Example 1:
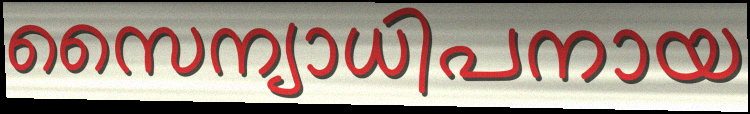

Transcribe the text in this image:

സൈന്യാധിപനായ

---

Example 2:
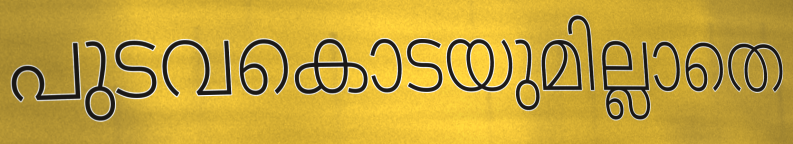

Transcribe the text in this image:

പുടവകൊടയുമില്ലാതെ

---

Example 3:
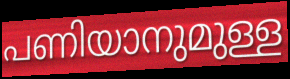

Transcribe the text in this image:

പണിയാനുമുള്ള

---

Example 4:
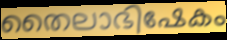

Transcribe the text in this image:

തൈലാഭിഷേകം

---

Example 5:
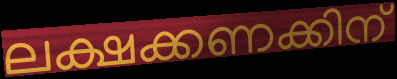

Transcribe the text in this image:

ലക്ഷക്കണക്കിന്